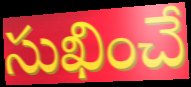
సుఖించే